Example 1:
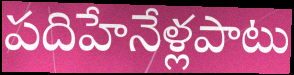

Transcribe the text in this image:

పదిహేనేళ్లపాటు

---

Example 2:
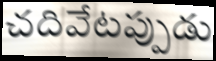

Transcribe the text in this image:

చదివేటప్పుడు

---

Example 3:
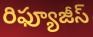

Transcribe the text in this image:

రిఫ్యూజీస్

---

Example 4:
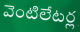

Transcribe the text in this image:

వెంటిలేటర్ల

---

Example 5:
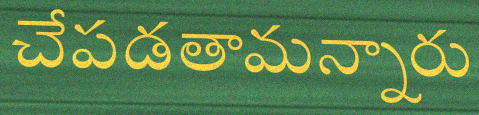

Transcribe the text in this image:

చేపడతామన్నారు